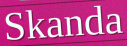
Skanda